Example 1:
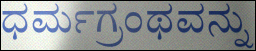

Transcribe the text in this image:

ಧರ್ಮಗ್ರಂಥವನ್ನು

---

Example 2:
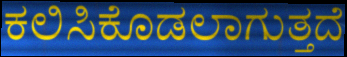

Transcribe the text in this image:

ಕಲಿಸಿಕೊಡಲಾಗುತ್ತದೆ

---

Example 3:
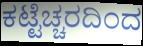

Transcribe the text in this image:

ಕಟ್ಟೆಚ್ಚರದಿಂದ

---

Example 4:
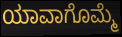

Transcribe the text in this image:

ಯಾವಾಗೊಮ್ಮೆ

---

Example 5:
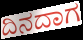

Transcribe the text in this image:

ದಿನದಾಗ